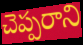
చెప్పరాని